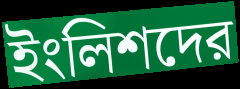
ইংলিশদের